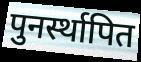
पुनर्स्थापित